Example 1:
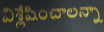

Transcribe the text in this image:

విశ్లేషించాలన్నా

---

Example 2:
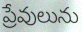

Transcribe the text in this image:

ప్రేవులును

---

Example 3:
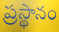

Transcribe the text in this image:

ప్రస్థానం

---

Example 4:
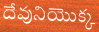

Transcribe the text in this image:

దేవునియొక్క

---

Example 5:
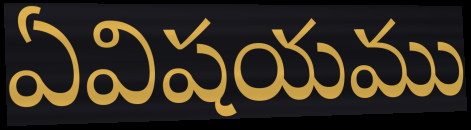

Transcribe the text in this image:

ఏవిషయము